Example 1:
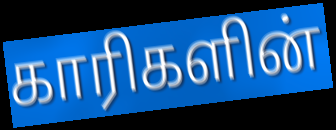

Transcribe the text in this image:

காரிகளின்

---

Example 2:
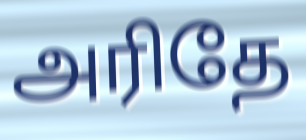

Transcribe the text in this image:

அரிதே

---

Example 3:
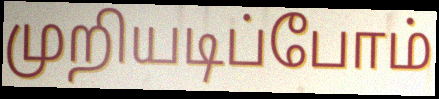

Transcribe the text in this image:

முறியடிப்போம்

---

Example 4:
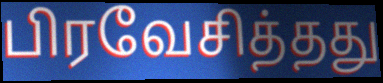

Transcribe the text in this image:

பிரவேசித்தது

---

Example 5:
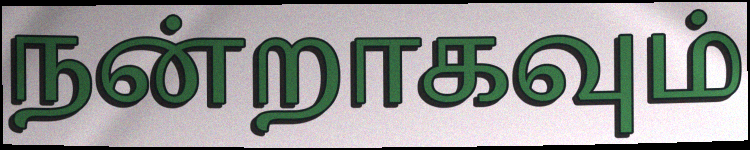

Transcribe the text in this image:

நன்றாகவும்